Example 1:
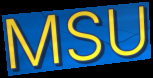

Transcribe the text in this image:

MSU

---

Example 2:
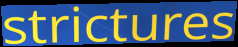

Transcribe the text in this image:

strictures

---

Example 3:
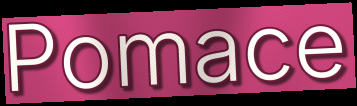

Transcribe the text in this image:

Pomace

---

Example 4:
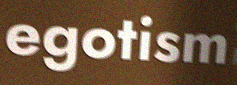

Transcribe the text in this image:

egotism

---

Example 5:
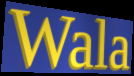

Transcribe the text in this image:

Wala